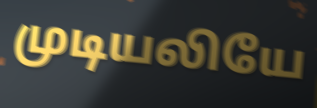
முடியலியே